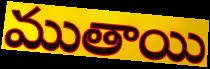
ముతాయి